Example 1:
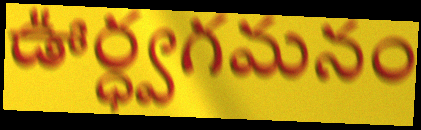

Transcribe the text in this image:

ఊర్ధ్వగమనం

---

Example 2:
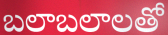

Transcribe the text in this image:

బలాబలాలతో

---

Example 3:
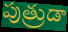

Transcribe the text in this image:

పుత్రుడా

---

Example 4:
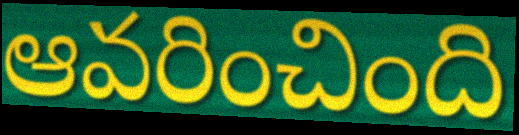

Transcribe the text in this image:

ఆవరించింది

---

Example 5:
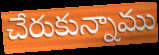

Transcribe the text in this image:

చేరుకున్నాము